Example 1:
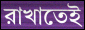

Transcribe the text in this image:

রাখাতেই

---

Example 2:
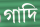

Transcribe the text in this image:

গাদি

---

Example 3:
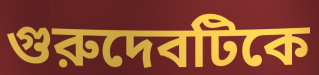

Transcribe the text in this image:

গুরুদেবটিকে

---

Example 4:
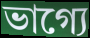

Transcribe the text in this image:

ভাগ্যে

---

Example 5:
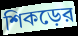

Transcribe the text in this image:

শিকড়ের